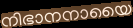
നിഭാനനായൈ